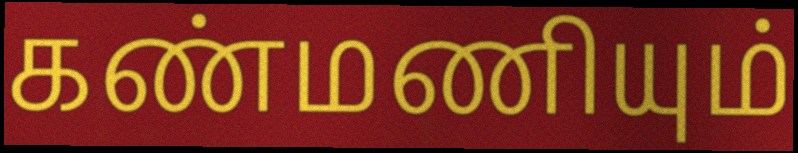
கண்மணியும்